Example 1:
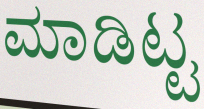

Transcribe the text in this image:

ಮಾಡಿಟ್ಟ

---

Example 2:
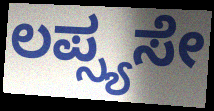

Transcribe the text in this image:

ಲಪ್ಸ್ಯಸೇ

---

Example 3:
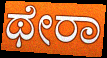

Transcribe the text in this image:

ಥೇರಾ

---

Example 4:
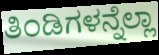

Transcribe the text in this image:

ತಿಂಡಿಗಳನ್ನೆಲ್ಲಾ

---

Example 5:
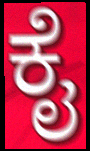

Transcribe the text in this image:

ಕೈ